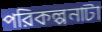
পরিকল্পনাটা